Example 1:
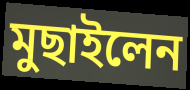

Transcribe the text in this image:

মুছাইলেন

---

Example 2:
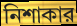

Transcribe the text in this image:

নিশাকার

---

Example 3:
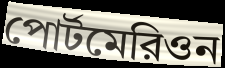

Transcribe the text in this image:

পোর্টমেরিওন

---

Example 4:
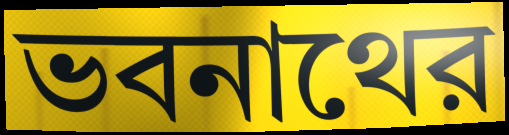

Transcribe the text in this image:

ভবনাথের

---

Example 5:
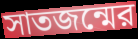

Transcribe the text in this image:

সাতজন্মের